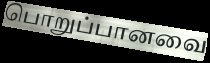
பொறுப்பானவை